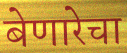
बेणारेचा